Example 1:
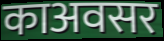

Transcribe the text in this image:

काअवसर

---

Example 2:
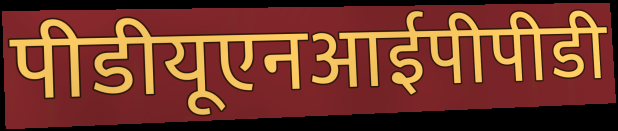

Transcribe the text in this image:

पीडीयूएनआईपीपीडी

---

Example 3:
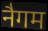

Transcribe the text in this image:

नैगम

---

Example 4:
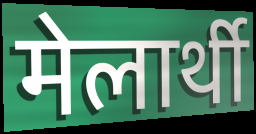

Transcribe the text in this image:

मेलार्थी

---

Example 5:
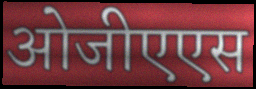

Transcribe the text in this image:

ओजीएएस